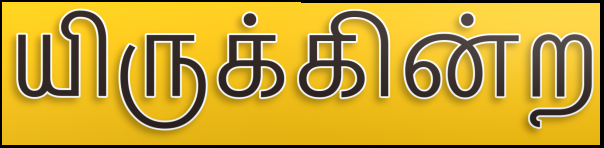
யிருக்கின்ற